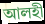
আলহী